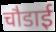
चौडाई